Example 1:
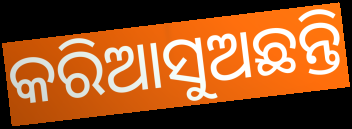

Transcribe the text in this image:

କରିଆସୁଅଛନ୍ତି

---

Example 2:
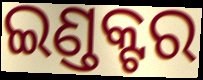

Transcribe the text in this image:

ଇଣ୍ଡକ୍ଟର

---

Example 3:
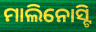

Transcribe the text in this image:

ମାଲିନୋସ୍ଟି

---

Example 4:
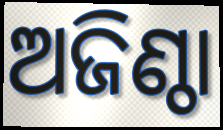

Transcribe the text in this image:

ଅଜିଣ୍ଠା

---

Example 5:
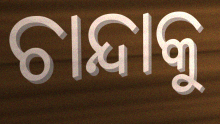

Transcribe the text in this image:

ଚାନ୍ଦାକୁ